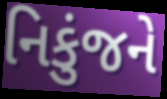
નિકુંજને